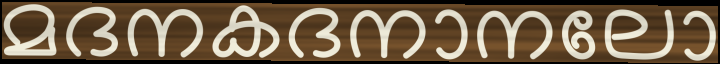
മദനകദനാനലോ